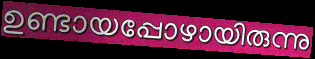
ഉണ്ടായപ്പോഴായിരുന്നു